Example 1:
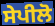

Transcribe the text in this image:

ਸੇਪੀਲੋ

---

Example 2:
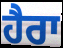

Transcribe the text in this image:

ਹੈਰਾ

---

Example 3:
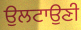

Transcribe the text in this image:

ਉਲਟਾਉਣੀ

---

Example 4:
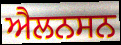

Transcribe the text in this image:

ਐਲਨਸਨ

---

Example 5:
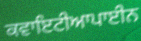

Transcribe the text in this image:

ਕਵਾਇਟੀਆਪਾਈਨ